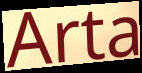
Arta